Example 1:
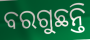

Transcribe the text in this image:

ବରଗୁଛନ୍ତି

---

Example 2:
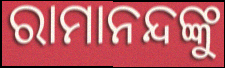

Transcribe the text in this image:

ରାମାନନ୍ଦଙ୍କୁ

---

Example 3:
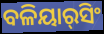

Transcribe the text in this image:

ବଳିୟାର୍‌ସିଂ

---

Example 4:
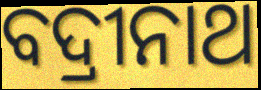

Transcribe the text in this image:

ବଦ୍ରୀନାଥ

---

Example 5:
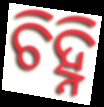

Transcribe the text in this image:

ଚିହ୍ନି